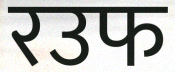
रउफ